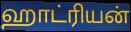
ஹாட்ரியன்